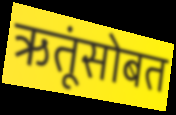
ऋतूंसोबत